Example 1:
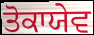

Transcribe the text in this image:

ਤੋਕਾਯੇਵ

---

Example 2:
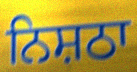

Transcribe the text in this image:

ਨਿਸ਼ਠਾ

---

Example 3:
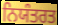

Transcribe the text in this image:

ਨਿਯੰਤਰਤ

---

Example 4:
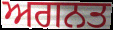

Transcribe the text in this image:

ਅਗਨਤ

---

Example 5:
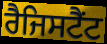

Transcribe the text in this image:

ਰੈਜਿਸਟੈਂਟ